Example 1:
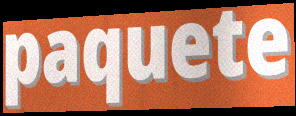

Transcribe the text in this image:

paquete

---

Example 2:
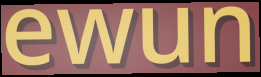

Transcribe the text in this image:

ewun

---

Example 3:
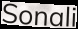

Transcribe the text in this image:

Sonali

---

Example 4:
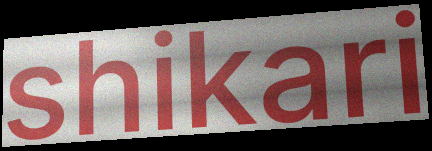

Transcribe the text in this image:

shikari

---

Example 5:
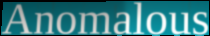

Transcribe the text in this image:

Anomalous